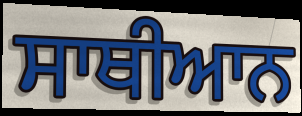
ਸਾਥੀਆਨ